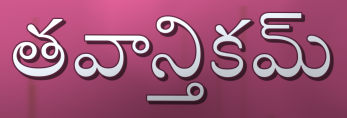
తవాన్తికమ్